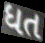
ધત